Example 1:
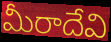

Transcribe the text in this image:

మీరాదేవి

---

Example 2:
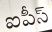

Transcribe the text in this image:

ఐపీస్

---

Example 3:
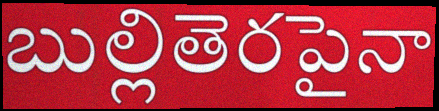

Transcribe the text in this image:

బుల్లితెరపైనా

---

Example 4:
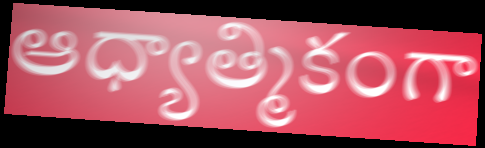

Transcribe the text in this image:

ఆధ్యాత్మికంగా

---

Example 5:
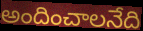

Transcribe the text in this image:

అందించాలనేది